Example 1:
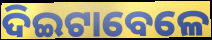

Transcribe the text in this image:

ଦିଇଟାବେଳେ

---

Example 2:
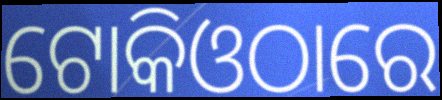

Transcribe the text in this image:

ଟୋକିଓଠାରେ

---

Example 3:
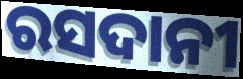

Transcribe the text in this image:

ରସଦାନୀ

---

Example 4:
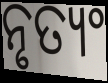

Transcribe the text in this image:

ନୃତ୍ୟଂ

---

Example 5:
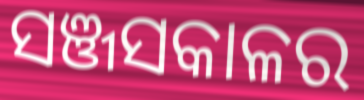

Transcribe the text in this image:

ସଞ୍ଜସକାଳର